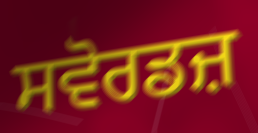
ਸਵੋਰਡਜ਼